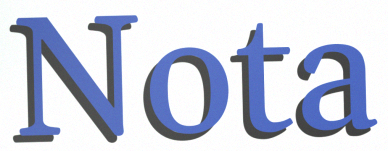
Nota